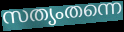
സത്യംതന്നെ